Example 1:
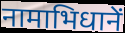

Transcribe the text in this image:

नामाभिधानें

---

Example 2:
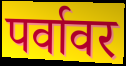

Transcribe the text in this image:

पर्वावर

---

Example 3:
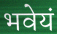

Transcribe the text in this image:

भवेयं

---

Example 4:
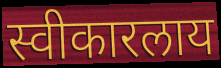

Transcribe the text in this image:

स्वीकारलाय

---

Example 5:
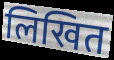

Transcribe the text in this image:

लिखित